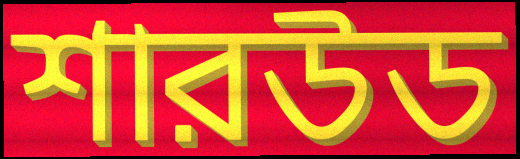
শারউড